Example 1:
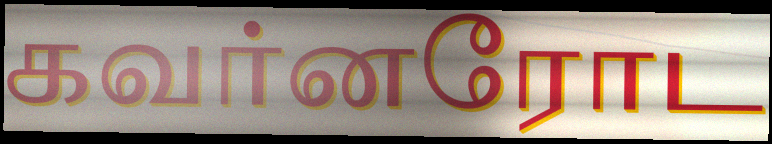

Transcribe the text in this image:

கவர்னரோட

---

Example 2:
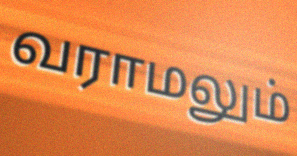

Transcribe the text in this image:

வராமலும்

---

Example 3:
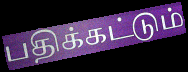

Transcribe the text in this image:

பதிக்கட்டும்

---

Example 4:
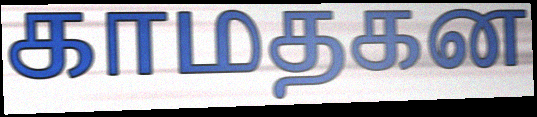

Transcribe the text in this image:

காமதகன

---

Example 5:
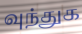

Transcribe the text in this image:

வுந்துக